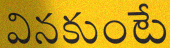
వినకుంటే